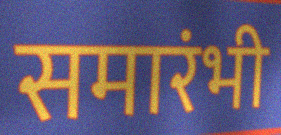
समारंभी